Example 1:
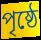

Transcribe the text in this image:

পৃষ্ঠে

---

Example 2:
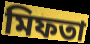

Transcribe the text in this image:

মিফতা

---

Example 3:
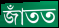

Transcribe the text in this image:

জাঁতত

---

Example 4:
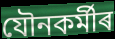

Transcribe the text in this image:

যৌনকৰ্মীৰ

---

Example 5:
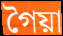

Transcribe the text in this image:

গৈয়া